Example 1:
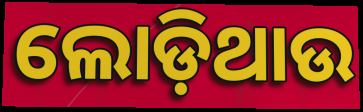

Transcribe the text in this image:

ଲୋଡ଼ିଥାଉ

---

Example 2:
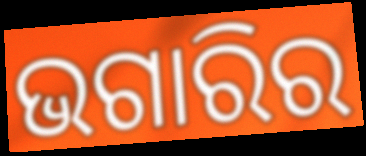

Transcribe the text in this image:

ଭଗାରିର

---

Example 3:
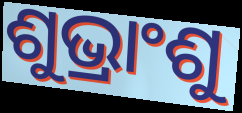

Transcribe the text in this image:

ଶୁଭ୍ରାଂଶୁ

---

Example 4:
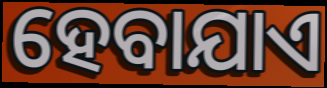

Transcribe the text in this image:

ହେବାଯାଏ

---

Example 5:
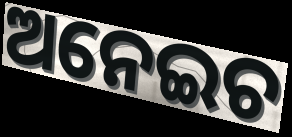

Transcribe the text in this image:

ଅନେଇଚ